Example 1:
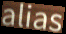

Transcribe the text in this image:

alias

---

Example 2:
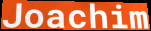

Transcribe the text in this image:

Joachim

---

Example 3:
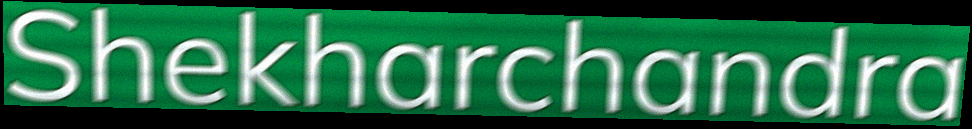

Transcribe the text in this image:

Shekharchandra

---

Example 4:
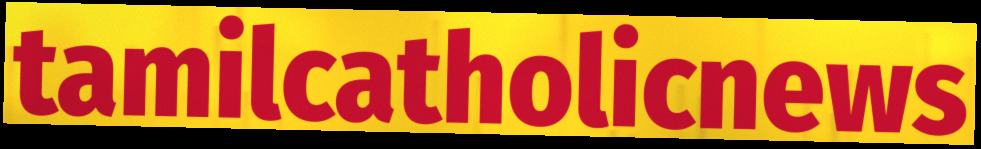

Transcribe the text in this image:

tamilcatholicnews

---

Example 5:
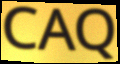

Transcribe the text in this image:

CAQ